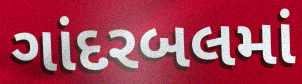
ગાંદરબલમાં